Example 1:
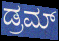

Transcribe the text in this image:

ಡ್ರಮ್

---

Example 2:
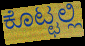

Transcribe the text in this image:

ಕೊಟ್ಟಲ್ಲಿ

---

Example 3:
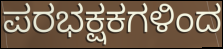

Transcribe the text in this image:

ಪರಭಕ್ಷಕಗಳಿಂದ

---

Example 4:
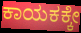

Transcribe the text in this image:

ಕಾಯಕಕ್ಕೇ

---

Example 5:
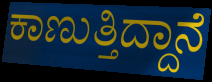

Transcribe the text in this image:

ಕಾಣುತ್ತಿದ್ದಾನೆ